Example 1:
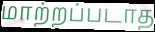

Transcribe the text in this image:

மாற்றப்படாத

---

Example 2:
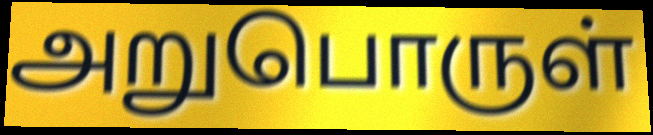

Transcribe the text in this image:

அறுபொருள்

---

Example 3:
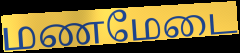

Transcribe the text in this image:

மணமேடை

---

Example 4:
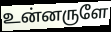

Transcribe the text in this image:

உன்னருளே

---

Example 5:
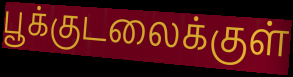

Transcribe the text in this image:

பூக்குடலைக்குள்